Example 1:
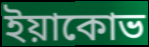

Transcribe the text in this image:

ইয়াকোভ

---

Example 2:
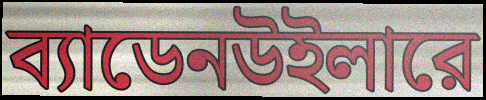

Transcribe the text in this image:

ব্যাডেনউইলারে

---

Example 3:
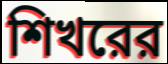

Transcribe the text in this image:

শিখরের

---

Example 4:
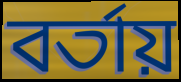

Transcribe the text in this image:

বর্তায়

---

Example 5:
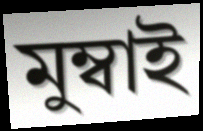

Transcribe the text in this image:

মুম্বাই